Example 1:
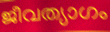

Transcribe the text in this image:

ജീവത്യാഗം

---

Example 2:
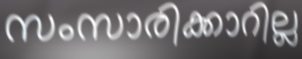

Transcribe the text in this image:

സംസാരിക്കാറില്ല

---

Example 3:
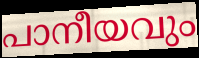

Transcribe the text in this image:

പാനീയവും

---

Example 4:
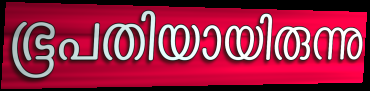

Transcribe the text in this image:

ഭൂപതിയായിരുന്നു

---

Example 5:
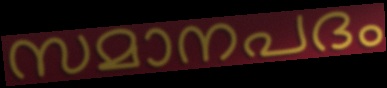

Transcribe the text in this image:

സമാനപദം